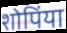
शोपिंया